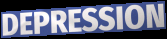
DEPRESSION